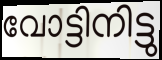
വോട്ടിനിട്ടു